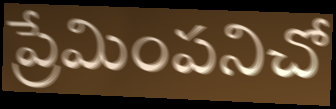
ప్రేమింపనిచో